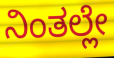
ನಿಂತಲ್ಲೇ